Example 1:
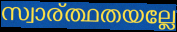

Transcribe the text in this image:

സ്വാര്ത്ഥതയല്ലേ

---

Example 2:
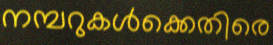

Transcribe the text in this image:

നമ്പറുകൾക്കെതിരെ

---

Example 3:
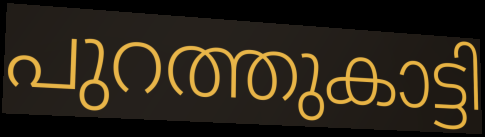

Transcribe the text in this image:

പുറത്തുകാട്ടി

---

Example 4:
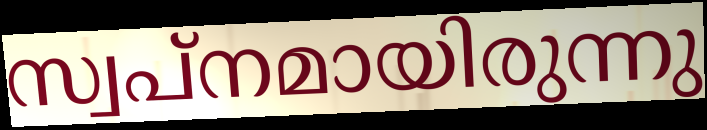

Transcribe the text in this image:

സ്വപ്നമായിരുന്നു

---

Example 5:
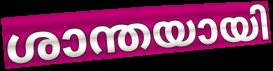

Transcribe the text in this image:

ശാന്തയായി